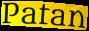
Patan